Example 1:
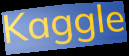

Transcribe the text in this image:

Kaggle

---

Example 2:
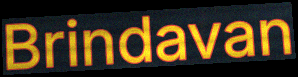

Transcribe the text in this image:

Brindavan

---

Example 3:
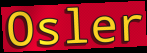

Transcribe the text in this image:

Osler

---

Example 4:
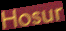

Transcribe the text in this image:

Hosur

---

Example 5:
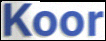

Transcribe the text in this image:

Koor